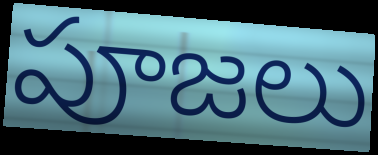
పూజలు